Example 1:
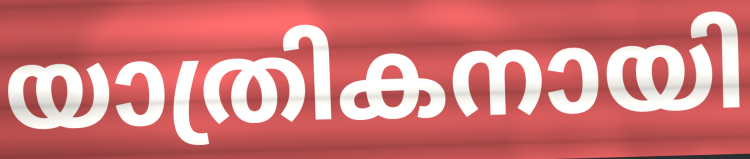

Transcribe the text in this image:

യാത്രികനായി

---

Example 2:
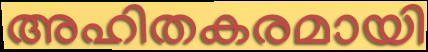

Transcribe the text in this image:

അഹിതകരമായി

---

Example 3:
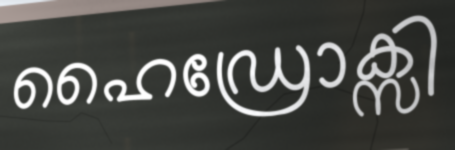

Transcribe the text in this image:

ഹൈഡ്രോക്സി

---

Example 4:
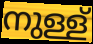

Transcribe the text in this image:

നുള്ള്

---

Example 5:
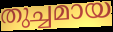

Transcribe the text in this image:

തുച്ചമായ